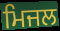
ਮਿਜਲ